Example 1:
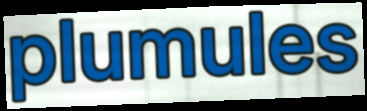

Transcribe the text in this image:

plumules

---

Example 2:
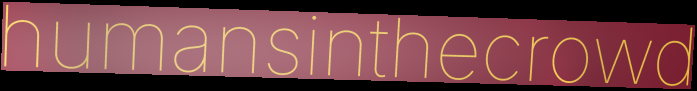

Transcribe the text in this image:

humansinthecrowd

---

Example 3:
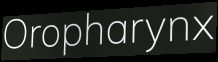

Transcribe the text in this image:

Oropharynx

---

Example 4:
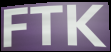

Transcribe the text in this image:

FTK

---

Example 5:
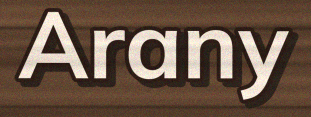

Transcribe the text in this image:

Arany